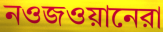
নওজওয়ানেরা